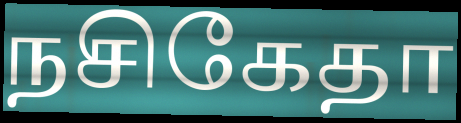
நசிகேதா